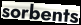
sorbents